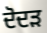
ਦੋਦੜ